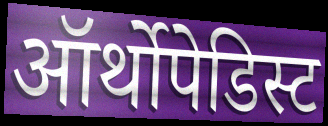
ऑर्थोपेडिस्ट